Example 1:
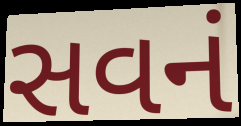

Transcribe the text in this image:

સવનં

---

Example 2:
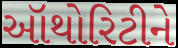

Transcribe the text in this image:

ઑથોરિટીને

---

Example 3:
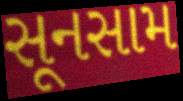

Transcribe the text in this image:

સૂનસામ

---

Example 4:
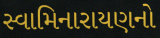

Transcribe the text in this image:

સ્વામિનારાયણનો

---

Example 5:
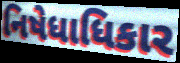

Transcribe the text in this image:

નિષેધાધિકાર